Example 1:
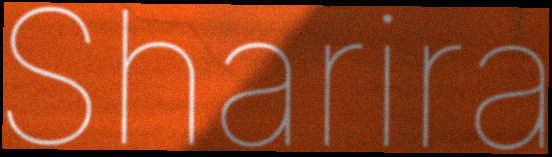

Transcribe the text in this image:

Sharira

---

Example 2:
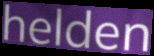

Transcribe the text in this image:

helden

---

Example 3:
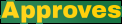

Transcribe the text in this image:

Approves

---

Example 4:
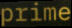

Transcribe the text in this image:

prime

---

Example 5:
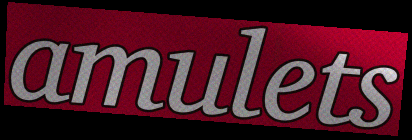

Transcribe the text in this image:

amulets